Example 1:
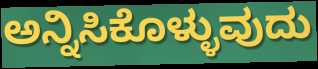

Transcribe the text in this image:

ಅನ್ನಿಸಿಕೊಳ್ಳುವುದು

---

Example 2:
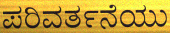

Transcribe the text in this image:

ಪರಿವರ್ತನೆಯು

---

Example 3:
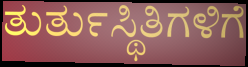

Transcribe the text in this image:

ತುರ್ತುಸ್ಥಿತಿಗಳಿಗೆ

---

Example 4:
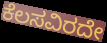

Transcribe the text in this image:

ಕೆಲಸವಿರದೇ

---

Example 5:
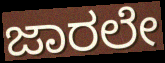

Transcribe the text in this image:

ಜಾರಲೇ